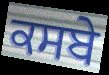
ਕਸਬੇ